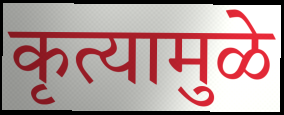
कृत्यामुळे